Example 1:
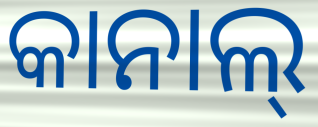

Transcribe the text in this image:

କାନାଲ୍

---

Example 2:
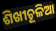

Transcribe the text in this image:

ଶିଖୀଚୂଳିଆ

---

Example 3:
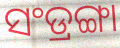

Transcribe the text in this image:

ସଂଡ୍ରଙ୍ଗା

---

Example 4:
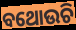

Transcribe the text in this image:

ବଥୋଉଚି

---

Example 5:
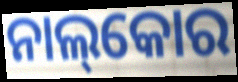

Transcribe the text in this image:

ନାଲ୍‌କୋର